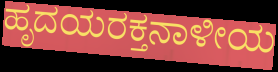
ಹೃದಯರಕ್ತನಾಳೀಯ